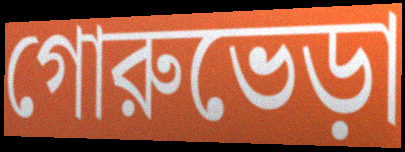
গোরুভেড়া